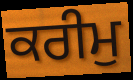
ਕਰੀਮੁ